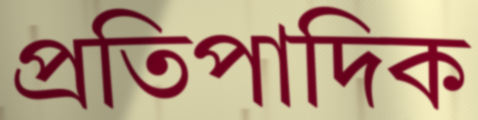
প্রতিপাদিক